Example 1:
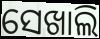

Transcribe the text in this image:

ସେଖାଲି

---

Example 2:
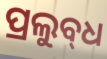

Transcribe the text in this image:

ପ୍ରଲୁବ୍‌ଧ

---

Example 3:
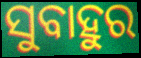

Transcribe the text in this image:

ସୁବାହୁର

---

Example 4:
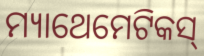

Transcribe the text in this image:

ମ୍ୟାଥେମେଟିକସ୍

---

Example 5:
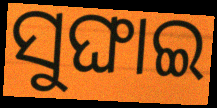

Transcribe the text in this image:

ସୁଙ୍ଘାଇ